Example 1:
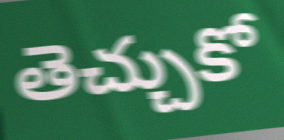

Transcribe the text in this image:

తెచ్చుకో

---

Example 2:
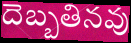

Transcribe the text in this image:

దెబ్బతినవు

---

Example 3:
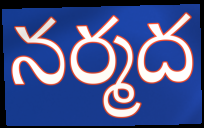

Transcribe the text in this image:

నర్మద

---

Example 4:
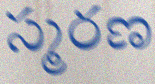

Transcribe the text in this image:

స్మరణ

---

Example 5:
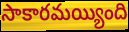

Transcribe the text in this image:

సాకారమయ్యింది